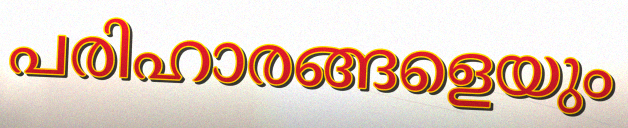
പരിഹാരങ്ങളെയും